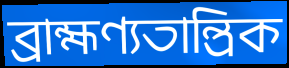
ব্রাহ্মণ্যতান্ত্রিক